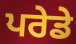
ਪਰੇਡੇ